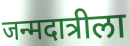
जन्मदात्रीला